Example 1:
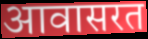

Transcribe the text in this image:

आवासरत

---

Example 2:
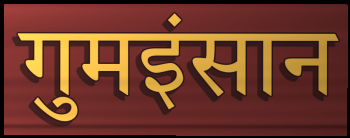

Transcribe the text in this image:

गुमइंसान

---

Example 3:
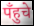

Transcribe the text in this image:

पँहुचे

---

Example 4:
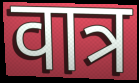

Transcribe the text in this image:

वात्र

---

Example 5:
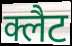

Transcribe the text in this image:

क्लैट